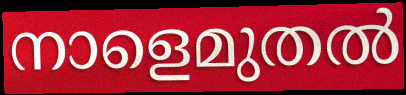
നാളെമുതൽ